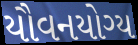
યૌવનયોગ્ય